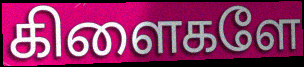
கிளைகளே